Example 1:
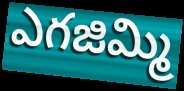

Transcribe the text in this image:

ఎగజిమ్మి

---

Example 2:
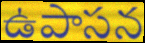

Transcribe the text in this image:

ఉపాసన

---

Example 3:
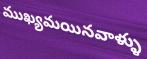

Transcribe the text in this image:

ముఖ్యమయినవాళ్ళు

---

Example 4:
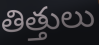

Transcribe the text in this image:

తిత్తులు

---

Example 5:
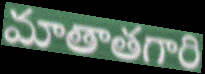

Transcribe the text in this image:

మాతాతగారి